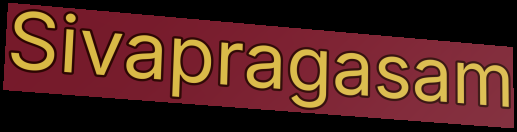
Sivapragasam